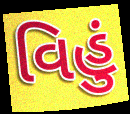
વિહું